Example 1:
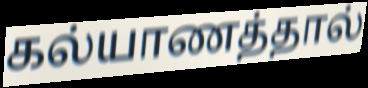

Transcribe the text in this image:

கல்யாணத்தால்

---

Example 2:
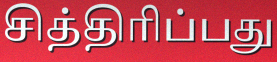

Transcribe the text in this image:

சித்திரிப்பது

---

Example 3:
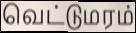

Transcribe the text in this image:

வெட்டுமரம்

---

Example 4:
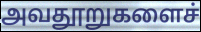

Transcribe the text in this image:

அவதூறுகளைச்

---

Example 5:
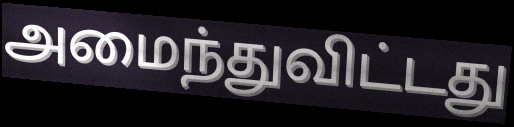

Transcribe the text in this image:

அமைந்துவிட்டது